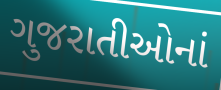
ગુજરાતીઓનાં